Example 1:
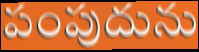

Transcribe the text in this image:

పంపుదును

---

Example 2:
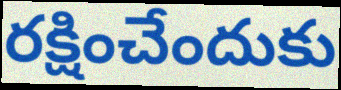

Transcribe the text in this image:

రక్షించేందుకు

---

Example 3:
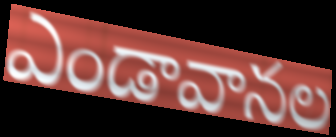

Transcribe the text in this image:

ఎండావానల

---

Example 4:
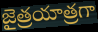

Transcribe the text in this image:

జైత్రయాత్రగా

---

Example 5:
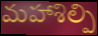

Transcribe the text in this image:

మహాశిల్పి